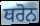
ਥਰੋਨ